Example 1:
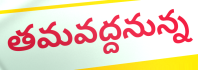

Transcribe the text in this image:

తమవద్దనున్న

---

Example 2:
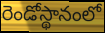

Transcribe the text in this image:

రెండోస్థానంలో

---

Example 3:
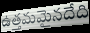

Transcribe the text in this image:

ఉత్తమమైనదేది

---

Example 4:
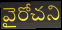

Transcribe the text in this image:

వైరోచని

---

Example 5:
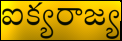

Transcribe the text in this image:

ఐక్యరాజ్య